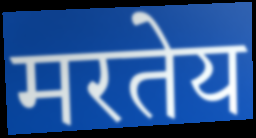
मरतेय